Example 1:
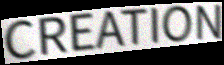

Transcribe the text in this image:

CREATION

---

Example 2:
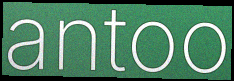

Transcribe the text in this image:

antoo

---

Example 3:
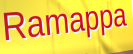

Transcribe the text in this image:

Ramappa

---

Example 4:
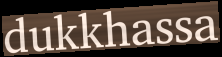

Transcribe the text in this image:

dukkhassa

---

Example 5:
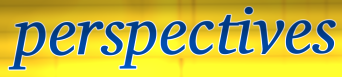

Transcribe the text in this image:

perspectives